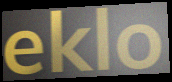
eklo